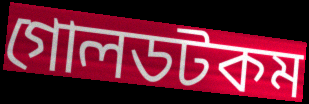
গোলডটকম